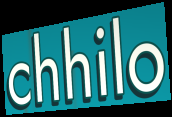
chhilo